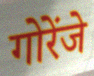
गोरेंजे